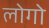
लोगो